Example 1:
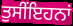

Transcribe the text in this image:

ਤੁਸੀਂਇਹਨਾਂ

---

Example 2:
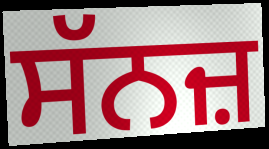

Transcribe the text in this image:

ਸੱਨਜ਼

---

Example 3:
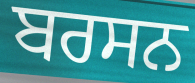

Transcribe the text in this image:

ਬਰਸਨ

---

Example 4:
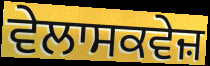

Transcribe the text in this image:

ਵੇਲਾਸਕਵੇਜ਼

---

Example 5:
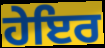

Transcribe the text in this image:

ਹੇਇਰ